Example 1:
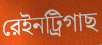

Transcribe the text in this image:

রেইনট্রিগাছ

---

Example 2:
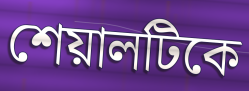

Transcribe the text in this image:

শেয়ালটিকে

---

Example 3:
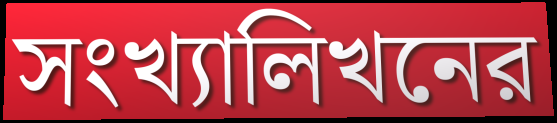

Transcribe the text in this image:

সংখ্যালিখনের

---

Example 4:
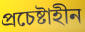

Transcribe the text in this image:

প্রচেষ্টাহীন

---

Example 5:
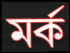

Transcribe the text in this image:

মর্ক